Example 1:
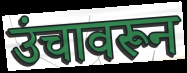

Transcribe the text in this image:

उंचावरून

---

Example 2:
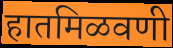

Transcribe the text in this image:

हातमिळवणी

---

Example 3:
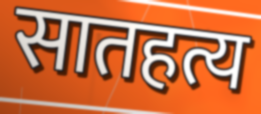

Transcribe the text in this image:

सातहत्य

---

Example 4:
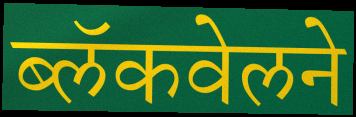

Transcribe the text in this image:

ब्लॅकवेलने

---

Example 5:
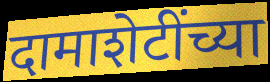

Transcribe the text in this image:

दामाशेटींच्या